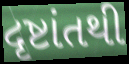
દૃષ્ટાંતથી